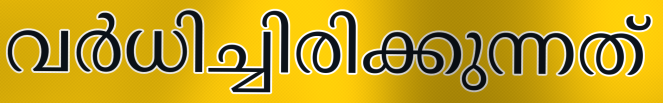
വർധിച്ചിരിക്കുന്നത്